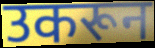
उकरून